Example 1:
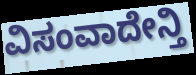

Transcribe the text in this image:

ವಿಸಂವಾದೇನ್ತಿ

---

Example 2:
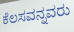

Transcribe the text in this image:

ಕೆಲಸವನ್ನವರು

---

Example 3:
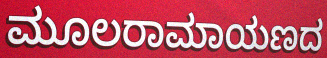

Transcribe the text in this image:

ಮೂಲರಾಮಾಯಣದ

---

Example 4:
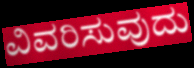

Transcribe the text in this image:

ವಿವರಿಸುವುದು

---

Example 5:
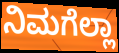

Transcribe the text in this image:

ನಿಮಗೆಲ್ಲಾ